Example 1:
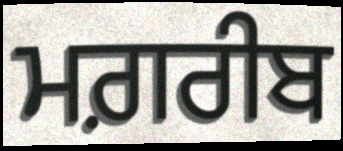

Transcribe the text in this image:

ਮਗ਼ਰੀਬ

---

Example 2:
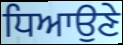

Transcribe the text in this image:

ਧਿਆਉਣੇ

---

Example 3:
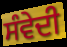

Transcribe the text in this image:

ਸੰਵੇਦੀ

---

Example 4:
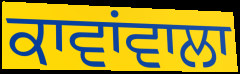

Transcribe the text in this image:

ਕਾਵਾਂਵਾਲਾ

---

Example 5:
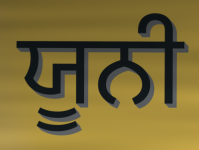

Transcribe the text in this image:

ਯੂਨੀ